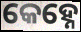
କେହ୍ନେ